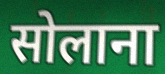
सोलाना